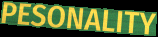
PESONALITY